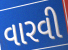
વારવી